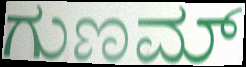
ಗುಣಮ್